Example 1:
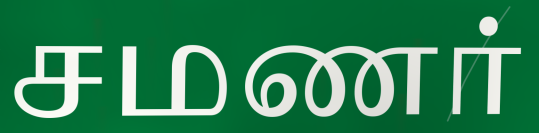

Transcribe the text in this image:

சமணர்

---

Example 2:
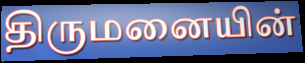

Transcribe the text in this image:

திருமனையின்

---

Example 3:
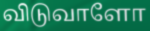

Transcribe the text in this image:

விடுவாளோ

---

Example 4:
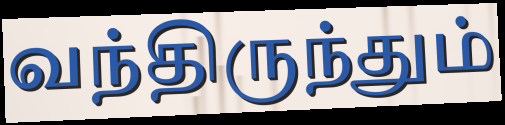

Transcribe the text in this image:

வந்திருந்தும்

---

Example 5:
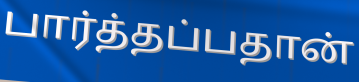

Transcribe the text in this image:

பார்த்தப்பதான்